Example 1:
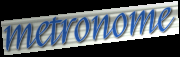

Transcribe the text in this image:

metronome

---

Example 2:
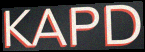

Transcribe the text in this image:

KAPD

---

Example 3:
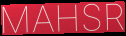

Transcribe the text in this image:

MAHSR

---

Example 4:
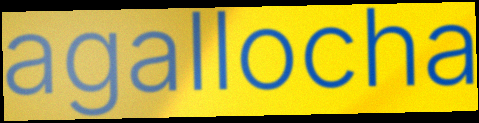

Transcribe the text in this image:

agallocha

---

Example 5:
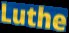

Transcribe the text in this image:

Luthe